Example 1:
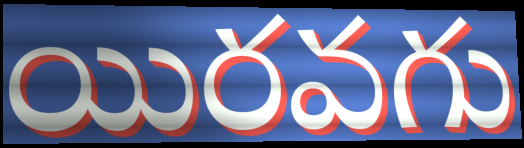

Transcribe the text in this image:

యిరవగు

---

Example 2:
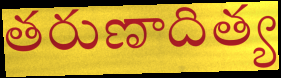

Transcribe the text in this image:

తరుణాదిత్య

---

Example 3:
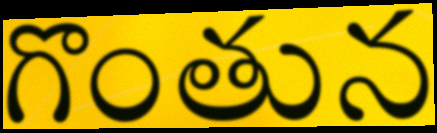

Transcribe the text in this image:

గొంతున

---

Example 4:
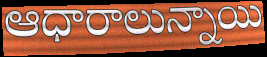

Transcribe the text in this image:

ఆధారాలున్నాయి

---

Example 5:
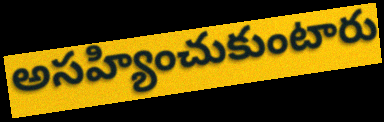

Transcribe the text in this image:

అసహ్యించుకుంటారు